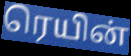
ரெயின்